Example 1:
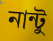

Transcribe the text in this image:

নান্টু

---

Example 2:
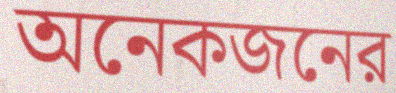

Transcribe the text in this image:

অনেকজনের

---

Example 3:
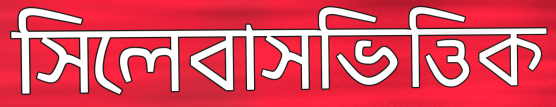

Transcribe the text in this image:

সিলেবাসভিত্তিক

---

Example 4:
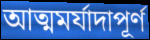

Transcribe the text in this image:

আত্মমর্যাদাপূর্ণ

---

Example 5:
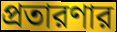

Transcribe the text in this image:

প্রতারণার